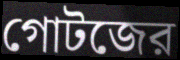
গোটজের